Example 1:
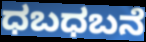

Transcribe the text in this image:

ಧಬಧಬನೆ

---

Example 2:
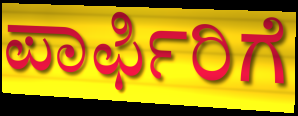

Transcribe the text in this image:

ಪಾರ್ಫಿರಿಗೆ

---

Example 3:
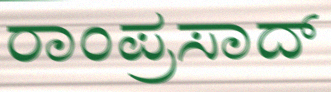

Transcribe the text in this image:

ರಾಂಪ್ರಸಾದ್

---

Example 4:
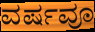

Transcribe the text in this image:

ವರ್ಷವೂ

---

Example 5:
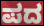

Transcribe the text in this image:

ಪದ